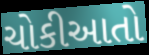
ચોકીઆતો